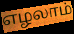
எழலாம்